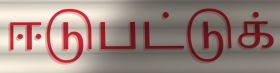
ஈடுபட்டுக்